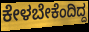
ಕೇಳಬೇಕೆಂದಿದ್ದ